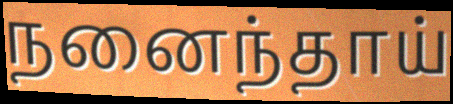
நனைந்தாய்